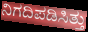
ನಿಗದಿಪಡಿಸಿತ್ತು